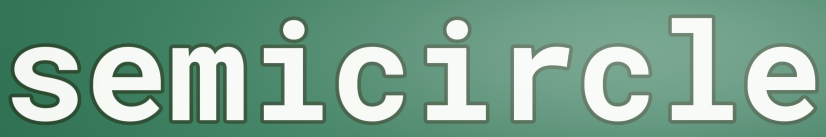
semicircle